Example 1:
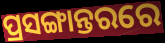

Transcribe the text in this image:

ପ୍ରସଙ୍ଗାନ୍ତରରେ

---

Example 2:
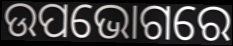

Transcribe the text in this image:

ଉପଭୋଗରେ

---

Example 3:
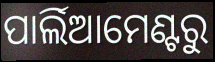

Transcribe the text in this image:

ପାର୍ଲିଆମେଣ୍ଟରୁ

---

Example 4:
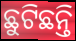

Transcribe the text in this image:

ଛୁଟିଛନ୍ତି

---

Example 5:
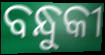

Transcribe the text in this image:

ବନ୍ଧୁକୀ